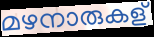
മഴനാരുകള്